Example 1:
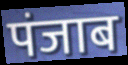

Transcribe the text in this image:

पंजाब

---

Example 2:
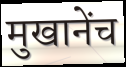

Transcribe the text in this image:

मुखानेंच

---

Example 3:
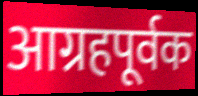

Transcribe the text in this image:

आग्रहपूर्वक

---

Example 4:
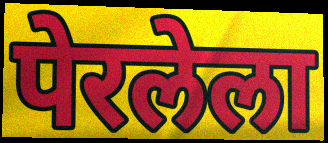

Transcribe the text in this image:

पेरलेला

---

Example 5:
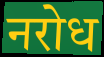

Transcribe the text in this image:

नरोध